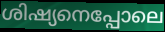
ശിഷ്യനെപ്പോലെ